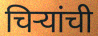
चिऱ्यांची